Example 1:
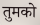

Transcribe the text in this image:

तुमको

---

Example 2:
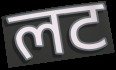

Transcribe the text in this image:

लट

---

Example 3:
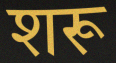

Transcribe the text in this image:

शरू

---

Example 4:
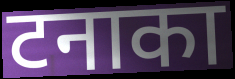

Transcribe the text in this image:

टनाका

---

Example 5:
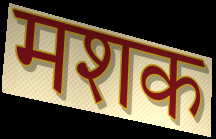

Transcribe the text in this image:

मशक